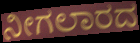
ನೀಗಲಾರದ